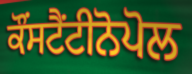
ਕੌਂਸਟੈਂਟੀਨੋਪੋਲ